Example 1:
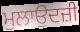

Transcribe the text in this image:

ਮੁਲਾਉਦਜ਼ੀ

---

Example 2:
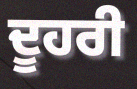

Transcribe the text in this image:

ਦੂਹਰੀ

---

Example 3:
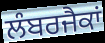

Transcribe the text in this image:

ਲੰਬਰਜੈਕਾਂ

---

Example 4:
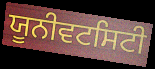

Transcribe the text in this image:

ਯੂਨੀਵਟਸਿਟੀ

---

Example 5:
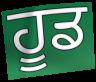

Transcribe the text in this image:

ਹੂਡ